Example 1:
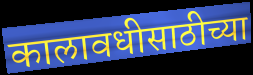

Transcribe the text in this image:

कालावधीसाठीच्या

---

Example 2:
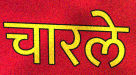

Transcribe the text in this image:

चारले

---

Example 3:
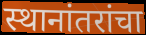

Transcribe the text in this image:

स्थानांतरांचा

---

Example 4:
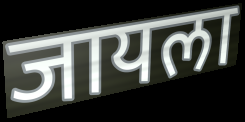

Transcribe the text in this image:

जायला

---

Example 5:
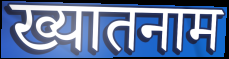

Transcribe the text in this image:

ख्यातनाम